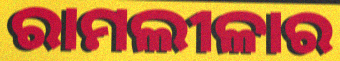
ରାମଲୀଳାର